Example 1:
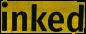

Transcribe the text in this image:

inked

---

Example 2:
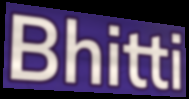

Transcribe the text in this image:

Bhitti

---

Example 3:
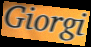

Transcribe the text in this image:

Giorgi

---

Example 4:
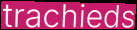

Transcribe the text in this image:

trachieds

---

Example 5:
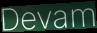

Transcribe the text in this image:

Devam